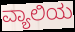
ವ್ಯಾಲಿಯ